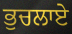
ਭੁਚਲਾਏ